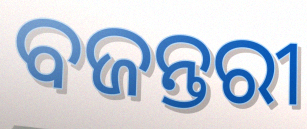
ବଜନ୍ତରୀ